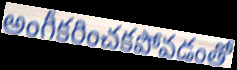
అంగీకరించకపోవడంతో